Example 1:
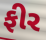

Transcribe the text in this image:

ફીર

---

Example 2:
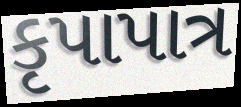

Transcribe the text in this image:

કૃપાપાત્ર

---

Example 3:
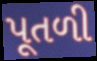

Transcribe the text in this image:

પૂતળી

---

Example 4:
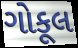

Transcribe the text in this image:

ગોકૂલ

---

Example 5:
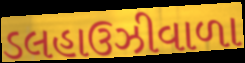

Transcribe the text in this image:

ડલહાઉઝીવાળા